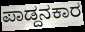
ಪಾಡ್ದನಕಾರ